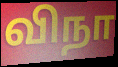
விநா